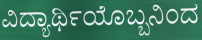
ವಿದ್ಯಾರ್ಥಿಯೊಬ್ಬನಿಂದ